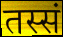
तस्सं